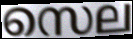
സെല